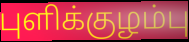
புளிக்குழம்பு